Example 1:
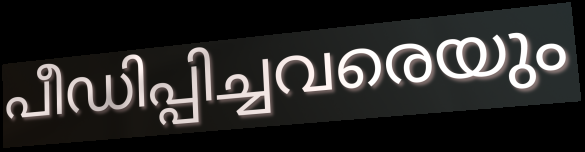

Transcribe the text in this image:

പീഡിപ്പിച്ചവരെയും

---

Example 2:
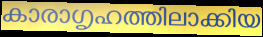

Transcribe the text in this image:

കാരാഗൃഹത്തിലാക്കിയ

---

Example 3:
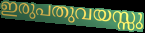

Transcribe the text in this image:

ഇരുപതുവയസ്സു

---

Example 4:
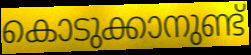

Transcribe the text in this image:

കൊടുക്കാനുണ്ട്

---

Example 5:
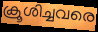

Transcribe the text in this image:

ക്രൂശിച്ചവരെ